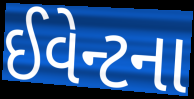
ઈવેન્ટના